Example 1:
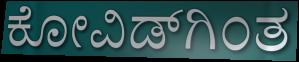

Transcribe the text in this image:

ಕೋವಿಡ್‌ಗಿಂತ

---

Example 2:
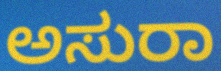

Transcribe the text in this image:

ಅಸುರಾ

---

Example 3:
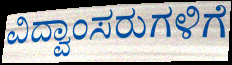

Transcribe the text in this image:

ವಿದ್ವಾಂಸರುಗಳಿಗೆ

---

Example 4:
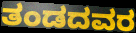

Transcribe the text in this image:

ತಂಡದವರ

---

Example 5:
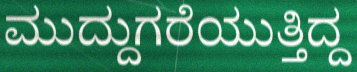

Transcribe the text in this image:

ಮುದ್ದುಗರೆಯುತ್ತಿದ್ದ